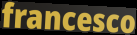
francesco